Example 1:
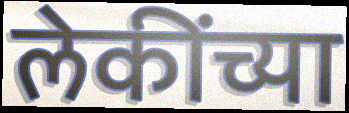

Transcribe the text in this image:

लेकींच्या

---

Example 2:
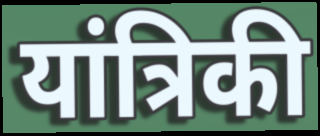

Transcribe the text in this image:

यांत्रिकी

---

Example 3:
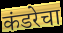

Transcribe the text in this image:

कंडरेचा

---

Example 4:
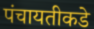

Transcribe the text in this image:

पंचायतीकडे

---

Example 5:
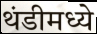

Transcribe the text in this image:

थंडीमध्ये